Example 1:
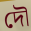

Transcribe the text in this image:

দৌ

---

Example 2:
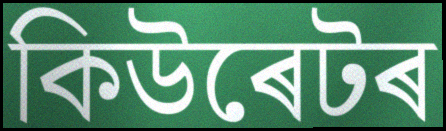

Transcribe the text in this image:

কিউৰেটৰ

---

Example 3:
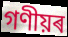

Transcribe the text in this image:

গণীয়ৰ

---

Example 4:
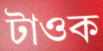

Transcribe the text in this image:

টাওক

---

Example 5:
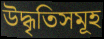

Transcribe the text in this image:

উদ্ধৃতিসমূহ